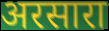
अरसारा